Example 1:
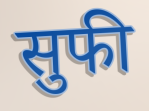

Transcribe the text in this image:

सुफी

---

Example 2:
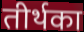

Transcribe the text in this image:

तीर्थका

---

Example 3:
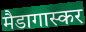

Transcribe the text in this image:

मैडागास्कर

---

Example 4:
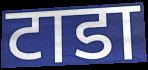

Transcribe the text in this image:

टाडा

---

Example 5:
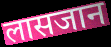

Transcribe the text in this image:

लासजान